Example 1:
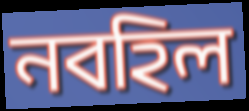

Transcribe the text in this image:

নবহিল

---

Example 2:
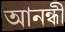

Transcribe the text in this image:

আনন্ধী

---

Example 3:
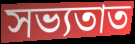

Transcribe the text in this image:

সভ্যতাত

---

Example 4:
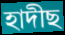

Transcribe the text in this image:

হাদীছ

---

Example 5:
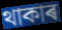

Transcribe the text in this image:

থাকাৰ